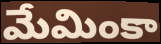
మేమింకా